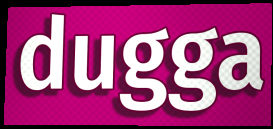
dugga